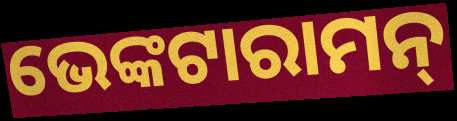
ଭେଙ୍କଟାରାମନ୍